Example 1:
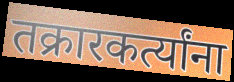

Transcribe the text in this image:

तक्रारकर्त्यांना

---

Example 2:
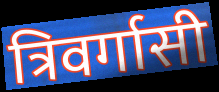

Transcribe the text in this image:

त्रिवर्गासी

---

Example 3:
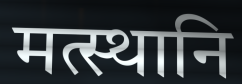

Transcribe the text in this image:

मत्स्थानि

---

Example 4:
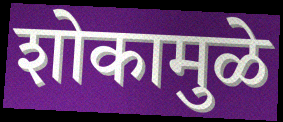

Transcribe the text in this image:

शोकामुळे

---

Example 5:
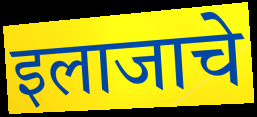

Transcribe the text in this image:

इलाजाचे